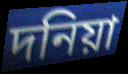
দনিয়া